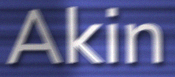
Akin